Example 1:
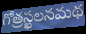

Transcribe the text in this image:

గోత్రస్ఖలనమథ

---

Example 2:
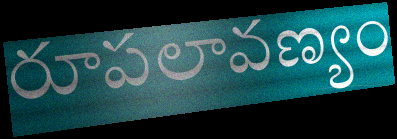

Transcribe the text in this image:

రూపలావణ్యం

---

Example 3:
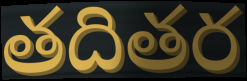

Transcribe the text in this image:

తదితర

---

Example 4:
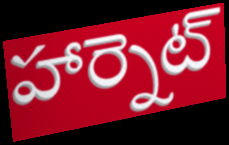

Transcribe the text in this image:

హార్నెట్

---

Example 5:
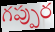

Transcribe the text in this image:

గప్పుర